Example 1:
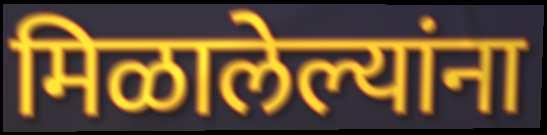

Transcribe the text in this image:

मिळालेल्यांना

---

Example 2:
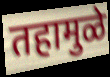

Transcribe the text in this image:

तहामुळे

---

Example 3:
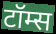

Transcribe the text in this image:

टॉम्स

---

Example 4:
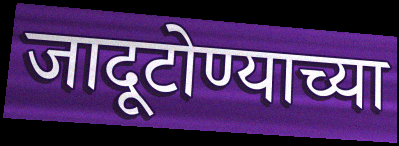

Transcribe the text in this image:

जादूटोण्याच्या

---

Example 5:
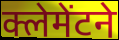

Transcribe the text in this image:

क्लेमेंटने